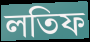
লতিফ